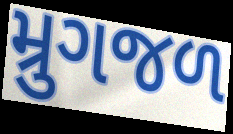
મ્રુગજળ